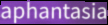
aphantasia